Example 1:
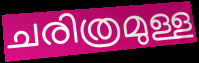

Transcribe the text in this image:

ചരിത്രമുള്ള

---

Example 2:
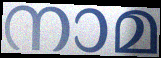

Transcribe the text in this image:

നാമ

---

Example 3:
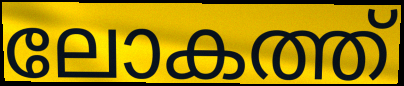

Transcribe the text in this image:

ലോകത്ത്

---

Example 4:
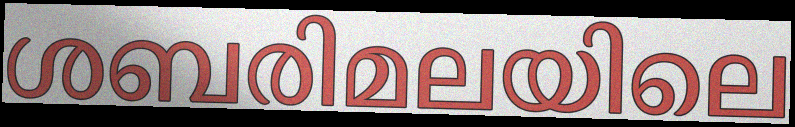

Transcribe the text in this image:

ശബരിമലയിലെ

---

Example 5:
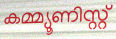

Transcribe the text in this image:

കമ്മ്യൂണിസ്റ്റ്